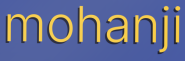
mohanji